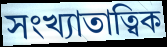
সংখ্যাতাত্বিক